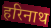
हरिनाथ